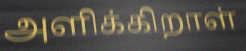
அளிக்கிறாள்